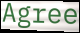
Agree